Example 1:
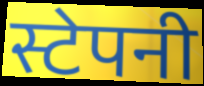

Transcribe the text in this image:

स्टेपनी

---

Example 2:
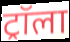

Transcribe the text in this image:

ट्रॉला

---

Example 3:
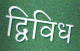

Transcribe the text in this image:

द्विविध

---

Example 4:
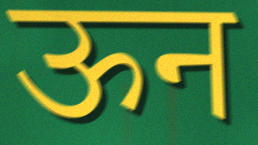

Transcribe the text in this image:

ऊन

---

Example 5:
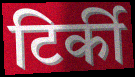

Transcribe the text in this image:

टिर्की